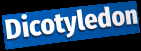
Dicotyledon